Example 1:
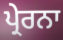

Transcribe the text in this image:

ਪ੍ਰੇਰਨਾ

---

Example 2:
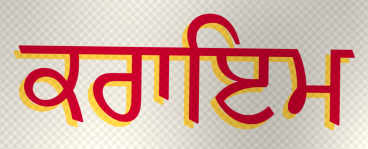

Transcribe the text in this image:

ਕਰਾਇਮ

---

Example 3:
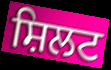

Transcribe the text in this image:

ਸ਼ਿਲਟ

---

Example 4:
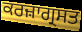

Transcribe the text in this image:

ਕਰਜ਼ਾਗ੍ਰਸਤ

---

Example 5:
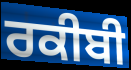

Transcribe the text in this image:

ਰਕੀਬੀ